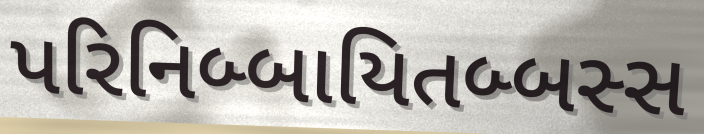
પરિનિબ્બાયિતબ્બસ્સ